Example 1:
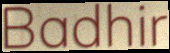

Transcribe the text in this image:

Badhir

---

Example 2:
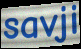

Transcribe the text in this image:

savji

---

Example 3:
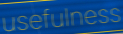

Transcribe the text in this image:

usefulness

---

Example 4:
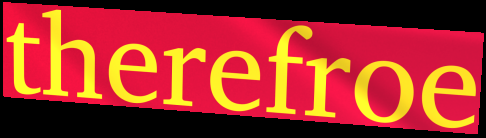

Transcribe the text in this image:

therefroe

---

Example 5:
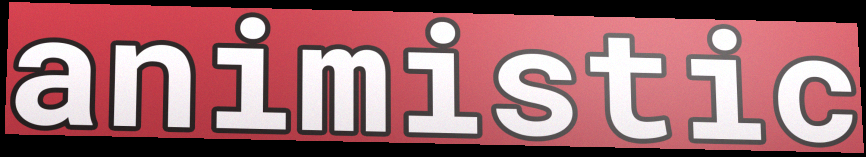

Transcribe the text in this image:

animistic